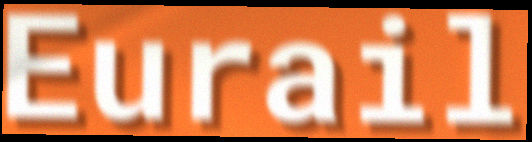
Eurail